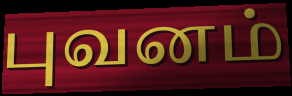
புவனம்